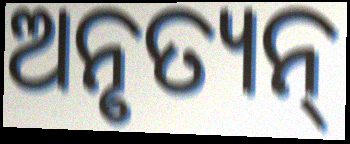
ଅନୃତ୍ୟନ୍